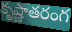
కృష్ణాతరంగ